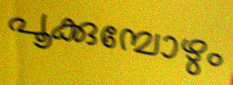
പൂക്കുമ്പോഴും